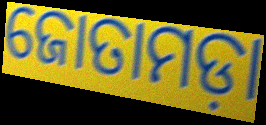
ଜୋତାମଡ଼ା